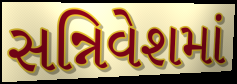
સન્નિવેશમાં